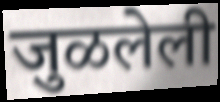
जुळलेली